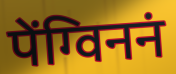
पेंग्विननं